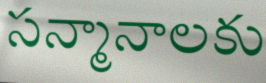
సన్మానాలకు